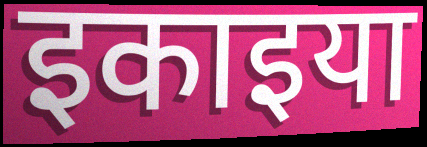
इकाइया